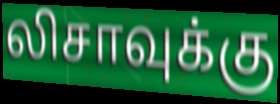
லிசாவுக்கு